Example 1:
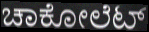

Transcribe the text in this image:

ಚಾಕೋಲೆಟ್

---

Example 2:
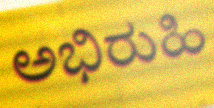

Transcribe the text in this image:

ಅಭಿರುಹಿ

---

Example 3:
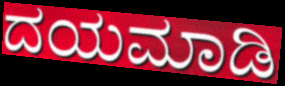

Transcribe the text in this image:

ದಯಮಾಡಿ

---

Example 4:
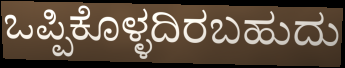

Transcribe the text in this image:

ಒಪ್ಪಿಕೊಳ್ಳದಿರಬಹುದು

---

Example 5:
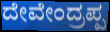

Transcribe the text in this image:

ದೇವೇಂದ್ರಪ್ಪ